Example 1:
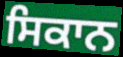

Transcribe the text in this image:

ਸਿਕਾਨ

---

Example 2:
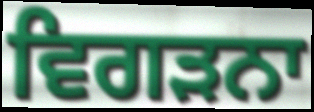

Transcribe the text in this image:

ਵਿਗੜਨਾ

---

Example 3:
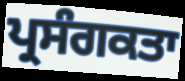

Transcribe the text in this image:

ਪ੍ਰਸੰਗਕਤਾ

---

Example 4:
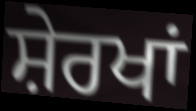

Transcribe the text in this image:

ਸ਼ੇਰਖਾਂ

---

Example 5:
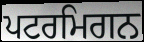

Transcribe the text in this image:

ਪਟਰਮਿਗਨ